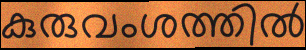
കുരുവംശത്തിൽ